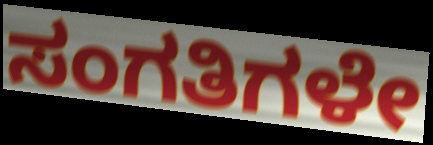
ಸಂಗತಿಗಳೇ